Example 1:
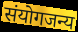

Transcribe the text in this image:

संयोगजन्य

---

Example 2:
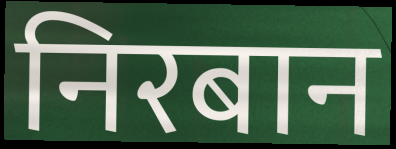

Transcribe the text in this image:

निरबान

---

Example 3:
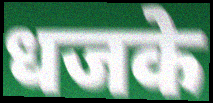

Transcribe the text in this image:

धजके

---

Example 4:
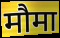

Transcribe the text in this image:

मौमा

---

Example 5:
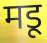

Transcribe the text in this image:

मडू